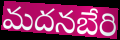
మదనబేరి